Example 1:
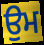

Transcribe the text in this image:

ਉਮ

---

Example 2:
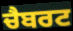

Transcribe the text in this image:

ਚੈਬਰਟ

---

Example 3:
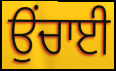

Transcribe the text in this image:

ਉਂਚਾਈ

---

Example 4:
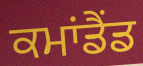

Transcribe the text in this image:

ਕਮਾਂਡੈਂਡ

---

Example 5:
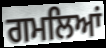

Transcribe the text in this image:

ਗਮਲਿਆਂ